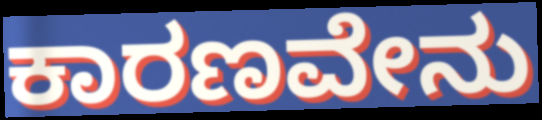
ಕಾರಣವೇನು